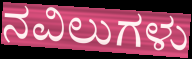
ನವಿಲುಗಳು